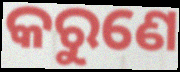
କରୁଣେ